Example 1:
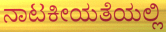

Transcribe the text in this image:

ನಾಟಕೀಯತೆಯಲ್ಲಿ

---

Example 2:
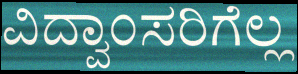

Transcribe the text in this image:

ವಿದ್ವಾಂಸರಿಗೆಲ್ಲ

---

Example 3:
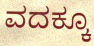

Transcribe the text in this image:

ವದಕ್ಕೂ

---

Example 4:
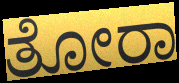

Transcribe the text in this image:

ತೋರಾ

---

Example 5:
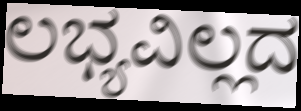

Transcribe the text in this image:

ಲಭ್ಯವಿಲ್ಲದ